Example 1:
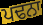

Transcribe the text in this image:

ਪਢਨਾ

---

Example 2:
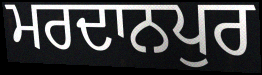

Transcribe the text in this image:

ਮਰਦਾਨਪੁਰ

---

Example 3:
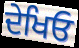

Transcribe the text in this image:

ਦੇਖਿਓ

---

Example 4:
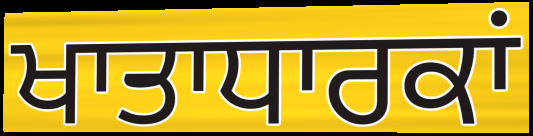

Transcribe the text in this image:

ਖਾਤਾਧਾਰਕਾਂ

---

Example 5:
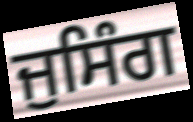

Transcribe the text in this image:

ਜੁਸਿੰਗ